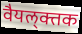
वैयल्क्तक